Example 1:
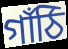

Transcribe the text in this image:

গাঁঠি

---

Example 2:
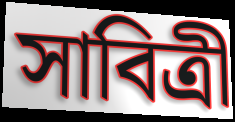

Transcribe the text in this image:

সাবিত্ৰী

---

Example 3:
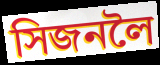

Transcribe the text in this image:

সিজনলৈ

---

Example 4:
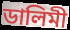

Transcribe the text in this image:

ডালিমী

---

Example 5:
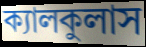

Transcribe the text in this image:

ক্যালকুলাস